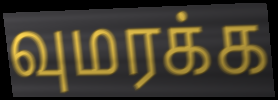
வுமரக்க